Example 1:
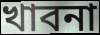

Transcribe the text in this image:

খাবনা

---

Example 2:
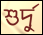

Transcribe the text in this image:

শুর্দু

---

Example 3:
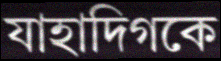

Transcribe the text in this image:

যাহাদিগকে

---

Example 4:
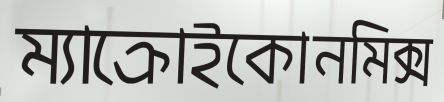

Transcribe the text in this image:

ম্যাক্রোইকোনমিক্স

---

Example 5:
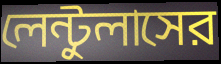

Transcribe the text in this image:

লেন্টুলাসের